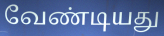
வேண்டியது